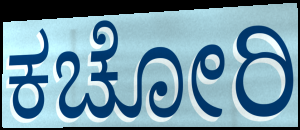
ಕಚೋರಿ